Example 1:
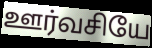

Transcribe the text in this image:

ஊர்வசியே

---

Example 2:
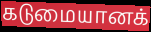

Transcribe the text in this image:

கடுமையானக்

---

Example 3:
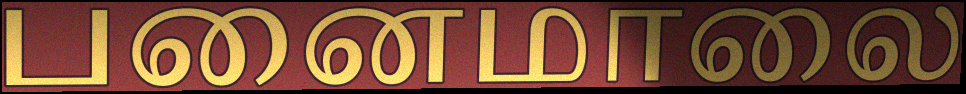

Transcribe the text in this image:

பனைமாலை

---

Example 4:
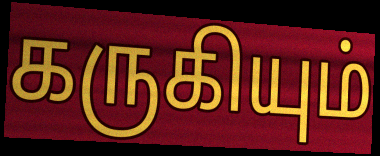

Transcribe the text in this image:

கருகியும்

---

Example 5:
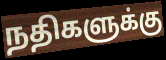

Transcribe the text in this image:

நதிகளுக்கு